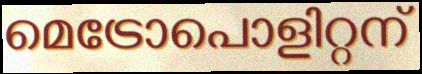
മെട്രോപൊളിറ്റന്